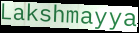
Lakshmayya